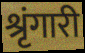
श्रृंगारी